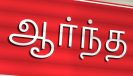
ஆர்ந்த